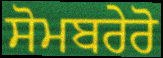
ਸੋਮਬਰੇਰੋ